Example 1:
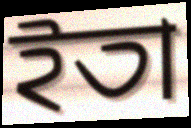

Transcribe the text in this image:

ইতা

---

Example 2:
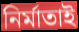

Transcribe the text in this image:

নির্মাতাই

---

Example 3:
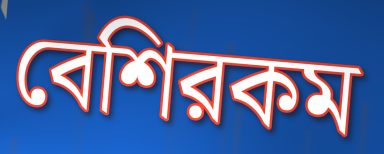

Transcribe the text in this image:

বেশিরকম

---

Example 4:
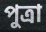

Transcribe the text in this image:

পুত্রা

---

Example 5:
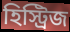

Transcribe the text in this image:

হিস্ট্রিজ